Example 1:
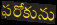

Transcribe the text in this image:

ఫరోకును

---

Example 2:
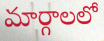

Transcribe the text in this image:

మార్గాలలో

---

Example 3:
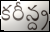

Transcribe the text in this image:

కరీన్ద్ర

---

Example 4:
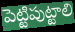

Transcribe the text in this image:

పెట్టిపుట్టాలి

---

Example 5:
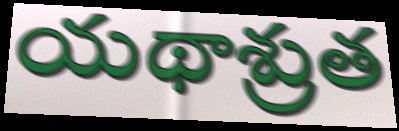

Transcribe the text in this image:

యథాశ్రుత